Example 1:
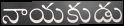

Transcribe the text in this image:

నాయకుడు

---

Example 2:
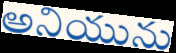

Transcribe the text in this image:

అనియును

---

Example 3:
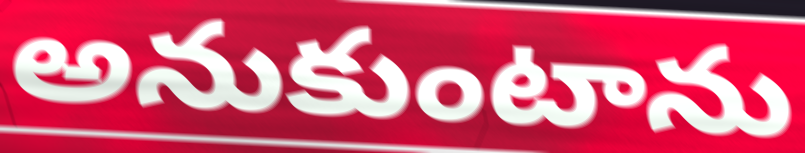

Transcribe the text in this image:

అనుకుంటాను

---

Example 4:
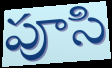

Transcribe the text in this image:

పూసి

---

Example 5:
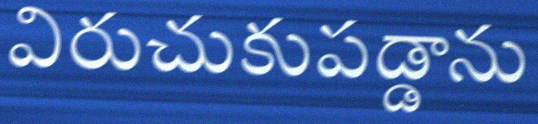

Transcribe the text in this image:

విరుచుకుపడ్డాను